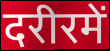
दरीरमें